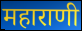
महाराणी